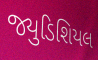
જ્યુડિશિયલ